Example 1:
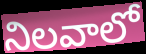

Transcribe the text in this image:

నిలవాలో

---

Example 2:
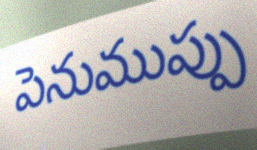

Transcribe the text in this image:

పెనుముప్పు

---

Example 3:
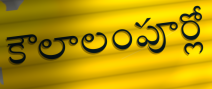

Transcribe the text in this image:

కౌలాలంపూర్లో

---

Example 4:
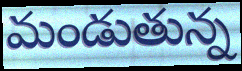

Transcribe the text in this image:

మండుతున్న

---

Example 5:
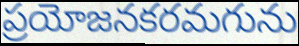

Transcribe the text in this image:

ప్రయోజనకరమగును